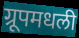
ग्रूपमधली